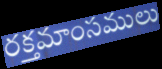
రక్తమాంసములు